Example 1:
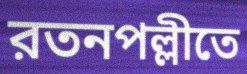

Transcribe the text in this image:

রতনপল্লীতে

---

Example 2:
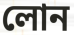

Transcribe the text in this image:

লোন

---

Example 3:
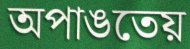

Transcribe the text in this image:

অপাঙতেয়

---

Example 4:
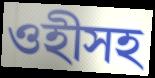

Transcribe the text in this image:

ওহীসহ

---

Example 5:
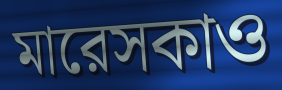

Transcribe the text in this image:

মারেসকাও